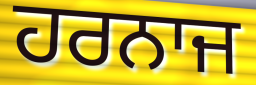
ਹਰਨਾਜ